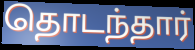
தொடந்தார்